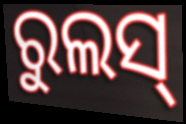
ରୁଲସ୍